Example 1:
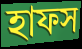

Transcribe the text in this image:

হাফস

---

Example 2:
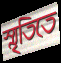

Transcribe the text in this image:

স্মৃতিতে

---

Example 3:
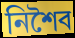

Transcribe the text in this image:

নিশৈব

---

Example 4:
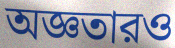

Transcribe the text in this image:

অজ্ঞতারও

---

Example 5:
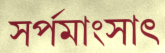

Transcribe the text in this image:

সর্পমাংসাৎ